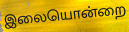
இலையொன்றை